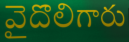
వైదొలిగారు